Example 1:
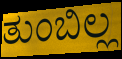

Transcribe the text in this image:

ತುಂಬಿಲ್ಲ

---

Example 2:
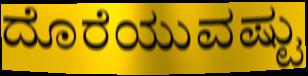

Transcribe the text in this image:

ದೊರೆಯುವಷ್ಟು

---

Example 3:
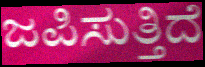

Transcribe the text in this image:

ಜಪಿಸುತ್ತಿದೆ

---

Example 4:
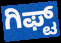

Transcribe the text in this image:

ಗಿಫ್ಟ್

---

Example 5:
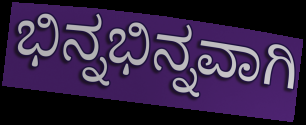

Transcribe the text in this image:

ಭಿನ್ನಭಿನ್ನವಾಗಿ